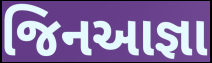
જિનઆજ્ઞા